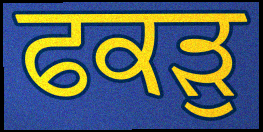
ਫਕੜੁ